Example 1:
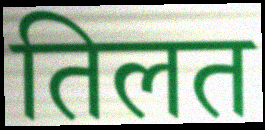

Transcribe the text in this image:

तिलत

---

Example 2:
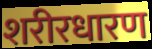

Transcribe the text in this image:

शरीरधारण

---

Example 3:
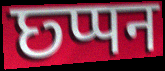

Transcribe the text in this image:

छ्प्पन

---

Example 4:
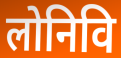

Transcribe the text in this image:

लोनिवि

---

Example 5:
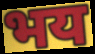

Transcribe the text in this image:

भय